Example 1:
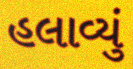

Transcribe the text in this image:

હલાવ્યું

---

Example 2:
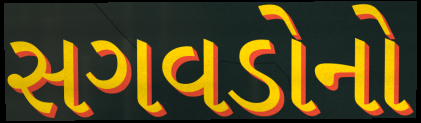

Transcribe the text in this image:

સગવડોનો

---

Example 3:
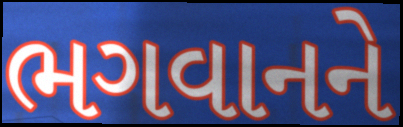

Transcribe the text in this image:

ભગવાનને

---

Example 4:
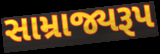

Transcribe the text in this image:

સામ્રાજ્યરૂપ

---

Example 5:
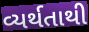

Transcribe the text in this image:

વ્યર્થતાથી